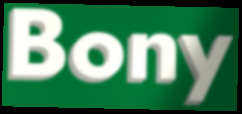
Bony